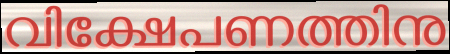
വിക്ഷേപണത്തിനു